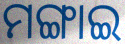
ମଙ୍ଗାଇ